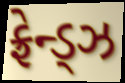
ફ્રેન્ડ્ઝ